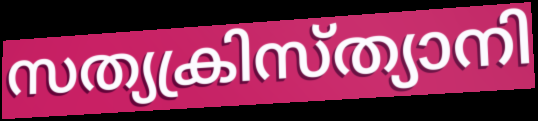
സത്യക്രിസ്ത്യാനി